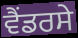
ਵੈਂਡਰਸੇ